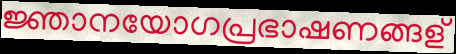
ജ്ഞാനയോഗപ്രഭാഷണങ്ങള്